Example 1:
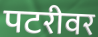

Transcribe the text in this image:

पटरीवर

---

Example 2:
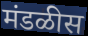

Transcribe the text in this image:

मंडळीस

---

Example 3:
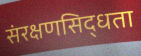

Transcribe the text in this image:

संरक्षणसिद्धता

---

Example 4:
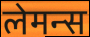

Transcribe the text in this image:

लेमन्स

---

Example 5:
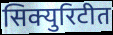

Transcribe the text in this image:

सिक्युरिटीत